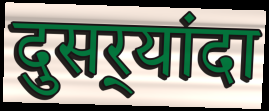
दुसर्यांदा